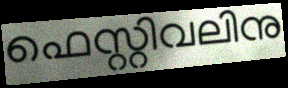
ഫെസ്റ്റിവലിനു